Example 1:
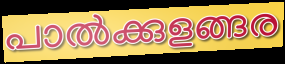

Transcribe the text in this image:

പാൽക്കുളങ്ങര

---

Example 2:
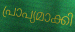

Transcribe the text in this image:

പ്രാപ്യമാക്കി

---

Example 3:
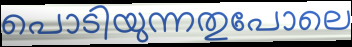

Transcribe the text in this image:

പൊടിയുന്നതുപോലെ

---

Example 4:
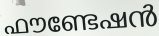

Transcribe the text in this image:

ഫൗണ്ടേഷൻ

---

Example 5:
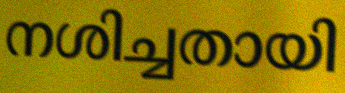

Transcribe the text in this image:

നശിച്ചതായി